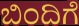
ಬಿಂದಿಗೆ